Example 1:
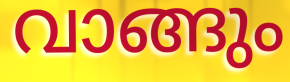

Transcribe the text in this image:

വാങ്ങും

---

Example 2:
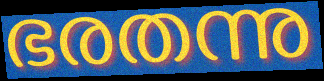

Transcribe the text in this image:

ഭരതന്നു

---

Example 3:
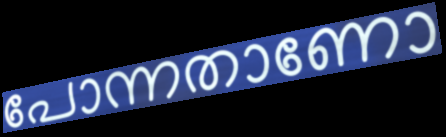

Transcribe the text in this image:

പോന്നതാണോ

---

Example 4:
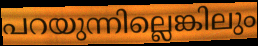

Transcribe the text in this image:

പറയുന്നില്ലെങ്കിലും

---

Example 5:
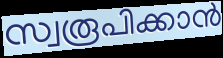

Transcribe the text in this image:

സ്വരൂപിക്കാൻ